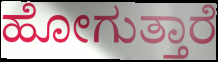
ಹೋಗುತ್ತಾರೆ